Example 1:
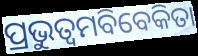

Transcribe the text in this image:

ପ୍ରଭୁତ୍ୱମବିବେକିତା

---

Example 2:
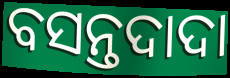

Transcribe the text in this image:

ବସନ୍ତଦାଦା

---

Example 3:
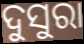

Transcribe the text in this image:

ଦୁସୁରା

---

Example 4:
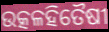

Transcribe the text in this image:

ଉତ୍କଳହିତୈଷୀ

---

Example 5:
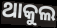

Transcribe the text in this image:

ଥାକୁଲ